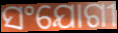
ସଂଯୋଗୀ